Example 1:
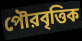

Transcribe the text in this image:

পৌরবৃত্তিক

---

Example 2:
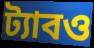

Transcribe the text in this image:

ট্যাবও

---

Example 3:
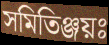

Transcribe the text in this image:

সমিতিঞ্জয়ঃ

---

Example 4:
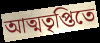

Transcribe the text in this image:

আত্মতৃপ্তিতে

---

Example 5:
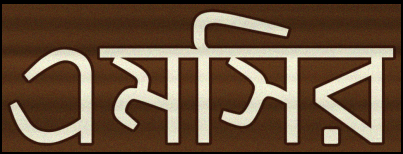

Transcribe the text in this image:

এমসির